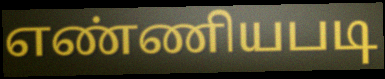
எண்ணியபடி